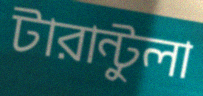
টারান্টুলা